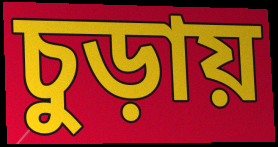
চুড়ায়